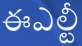
ఈఎల్టీ